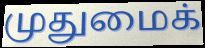
முதுமைக்